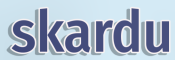
skardu